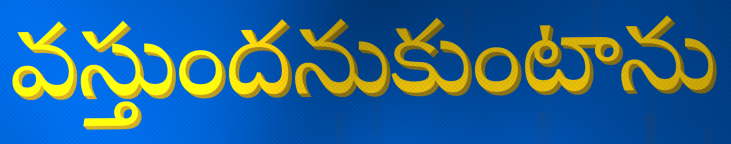
వస్తుందనుకుంటాను